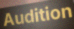
Audition